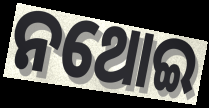
ନଥୋଇ